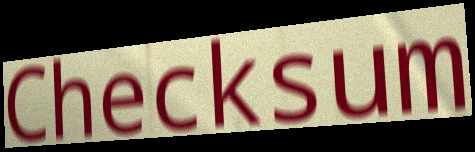
Checksum